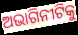
ଅଭାଗିନୀଟିକୁ